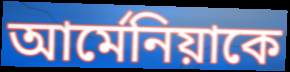
আর্মেনিয়াকে